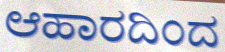
ಆಹಾರದಿಂದ